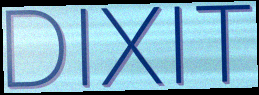
DIXIT